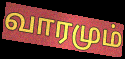
வாரமும்